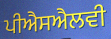
ਪੀਐਸਐਲਵੀ